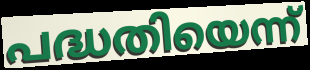
പദ്ധതിയെന്ന്